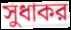
সুধাকর